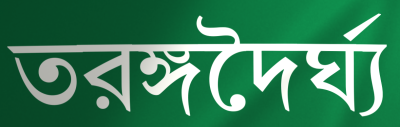
তরঙ্গদৈর্ঘ্য